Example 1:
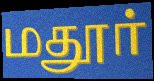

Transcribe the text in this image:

மதூர்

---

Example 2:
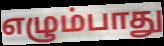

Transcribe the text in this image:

எழும்பாது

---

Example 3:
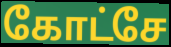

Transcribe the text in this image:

கோட்சே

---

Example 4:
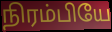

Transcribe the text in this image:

நிரம்பியே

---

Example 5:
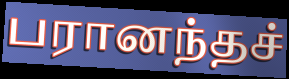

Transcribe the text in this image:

பரானந்தச்